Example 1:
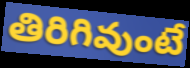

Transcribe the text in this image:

తిరిగివుంటే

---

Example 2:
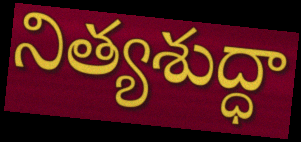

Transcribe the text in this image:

నిత్యశుద్ధా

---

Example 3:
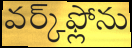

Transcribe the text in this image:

వర్క్‌ఫ్లోను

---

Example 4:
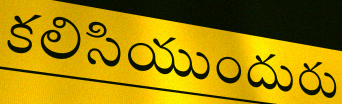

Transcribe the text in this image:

కలిసియుందురు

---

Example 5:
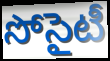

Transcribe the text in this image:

సోసైటీ